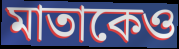
মাতাকেও